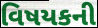
વિષયકની